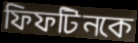
ফিফটিনকে